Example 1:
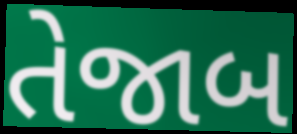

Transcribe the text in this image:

તેજાબ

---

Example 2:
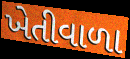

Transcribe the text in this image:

ખેતીવાળા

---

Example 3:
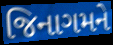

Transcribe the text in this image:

જિનાગમને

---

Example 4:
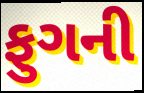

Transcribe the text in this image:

ફુગની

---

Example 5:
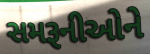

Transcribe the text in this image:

સમરૂનીઓને